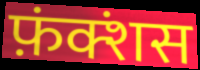
फ़ंक्शंस